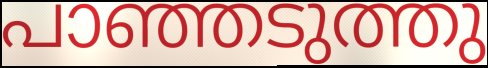
പാഞ്ഞടുത്തു